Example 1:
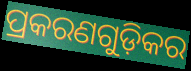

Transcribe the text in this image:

ପ୍ରକରଣଗୁଡ଼ିକର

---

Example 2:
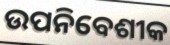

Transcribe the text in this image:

ଉପନିବେଶୀକ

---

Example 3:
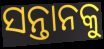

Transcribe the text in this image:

ସନ୍ତାନକୁ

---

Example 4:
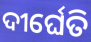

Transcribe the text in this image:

ଦୀର୍ଘେତି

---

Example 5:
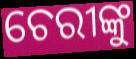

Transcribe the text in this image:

ଚେରୀଙ୍କୁ